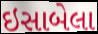
ઇસાબેલા